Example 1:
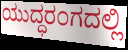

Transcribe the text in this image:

ಯುದ್ಧರಂಗದಲ್ಲಿ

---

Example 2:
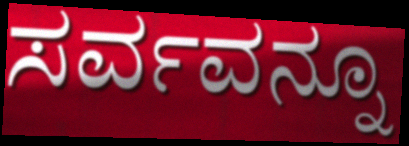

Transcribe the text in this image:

ಸರ್ವವನ್ನೂ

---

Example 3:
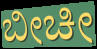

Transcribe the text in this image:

ಬೀಚೀ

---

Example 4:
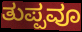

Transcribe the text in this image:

ತುಪ್ಪವೂ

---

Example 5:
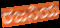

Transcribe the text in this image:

ರಜನಿಯ